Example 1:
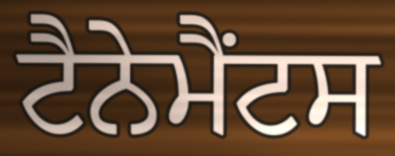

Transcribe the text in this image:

ਟੈਨੇਮੈਂਟਸ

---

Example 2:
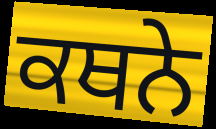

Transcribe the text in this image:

ਕਥਨੇ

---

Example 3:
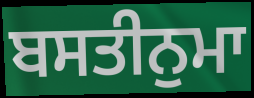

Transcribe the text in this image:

ਬਸਤੀਨੁਮਾ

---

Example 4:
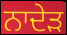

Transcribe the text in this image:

ਨਾਦੇੜ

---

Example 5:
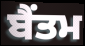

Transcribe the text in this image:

ਬੈਂਤਮ